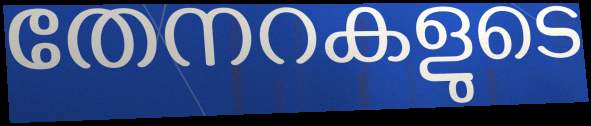
തേനറകളുടെ